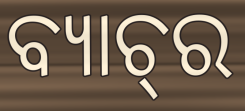
ବ୍ୟାଚ୍‌ର